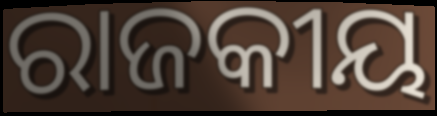
ରାଜକୀୟ